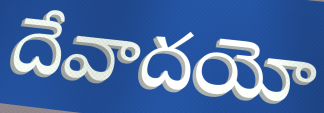
దేవాదయో